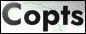
Copts